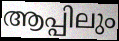
ആപ്പിലും